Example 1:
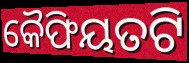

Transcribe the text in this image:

କୈଫିୟତଟି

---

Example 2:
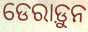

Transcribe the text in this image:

ଡେରାଡ଼ୁନ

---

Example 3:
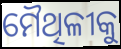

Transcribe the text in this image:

ମୈଥିଳୀକୁ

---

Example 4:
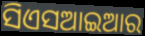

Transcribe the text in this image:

ସିଏସଆଇଆର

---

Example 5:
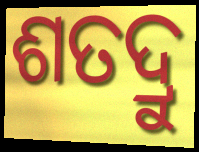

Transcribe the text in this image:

ଶତଦ୍ରୁ